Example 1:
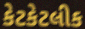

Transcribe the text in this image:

કેટકેટલીક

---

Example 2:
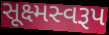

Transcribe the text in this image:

સૂક્ષ્મસ્વરૂપ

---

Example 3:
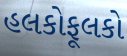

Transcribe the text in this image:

હલકોફૂલકો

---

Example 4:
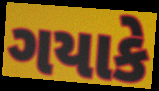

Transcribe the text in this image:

ગયાકે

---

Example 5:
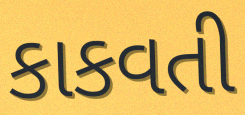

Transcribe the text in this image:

કાકવતી